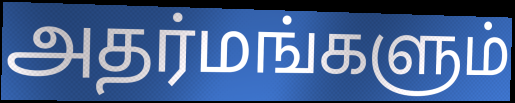
அதர்மங்களும்